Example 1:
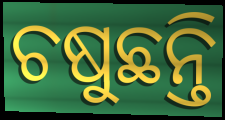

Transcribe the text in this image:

ଚଷୁଛନ୍ତି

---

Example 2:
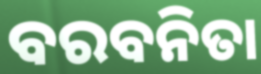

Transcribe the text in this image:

ବରବନିତା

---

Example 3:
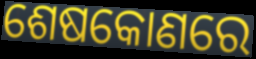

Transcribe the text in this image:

ଶେଷକୋଣରେ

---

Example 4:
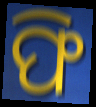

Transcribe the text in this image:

ଫି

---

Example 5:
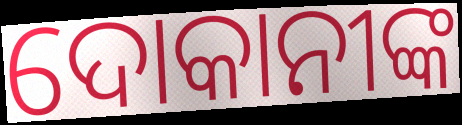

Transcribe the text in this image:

ଦୋକାନୀଙ୍କ